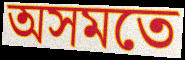
অসমতে